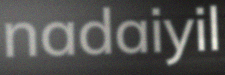
nadaiyil